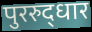
पुररुद्धार